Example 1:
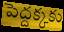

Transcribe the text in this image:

పెద్దక్కకు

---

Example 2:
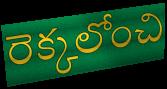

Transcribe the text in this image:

రెక్కలోంచి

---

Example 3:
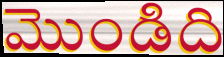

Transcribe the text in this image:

మొండిది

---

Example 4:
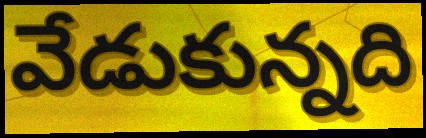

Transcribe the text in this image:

వేడుకున్నది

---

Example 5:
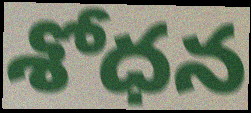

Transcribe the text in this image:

శోధన